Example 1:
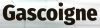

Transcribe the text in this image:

Gascoigne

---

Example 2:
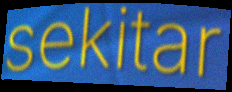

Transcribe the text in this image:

sekitar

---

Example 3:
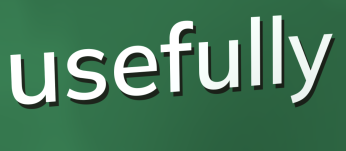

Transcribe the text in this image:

usefully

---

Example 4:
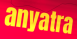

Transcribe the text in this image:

anyatra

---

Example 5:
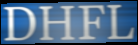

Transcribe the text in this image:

DHFL